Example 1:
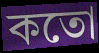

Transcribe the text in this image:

কতো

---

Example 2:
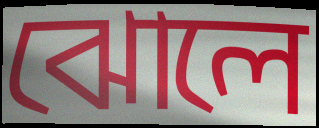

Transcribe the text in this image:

ঝোলে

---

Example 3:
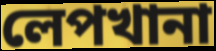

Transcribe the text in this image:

লেপখানা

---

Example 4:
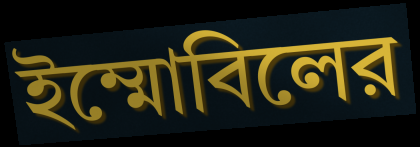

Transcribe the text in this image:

ইম্মোবিলের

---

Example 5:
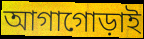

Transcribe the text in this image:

আগাগোড়াই